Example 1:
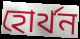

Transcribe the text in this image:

হোর্থন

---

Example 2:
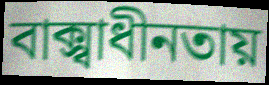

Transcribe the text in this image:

বাক্স্বাধীনতায়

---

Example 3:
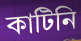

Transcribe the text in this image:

কাটিনি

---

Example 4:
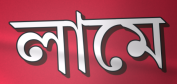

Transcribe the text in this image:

লামে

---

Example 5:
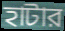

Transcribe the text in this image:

হাটার